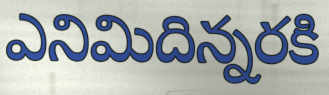
ఎనిమిదిన్నరకి